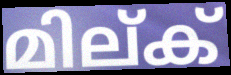
മില്ക്